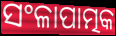
ସଂଳାପାତ୍ମକ